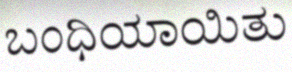
ಬಂಧಿಯಾಯಿತು